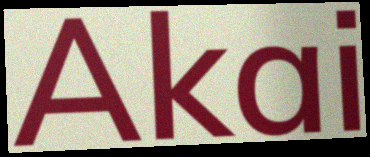
Akai